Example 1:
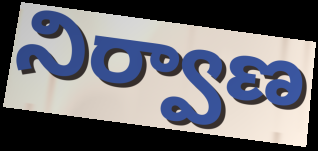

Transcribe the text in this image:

నిర్వాణ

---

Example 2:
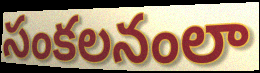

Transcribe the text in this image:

సంకలనంలా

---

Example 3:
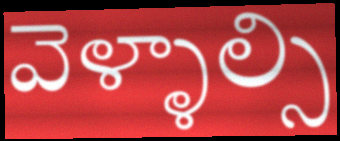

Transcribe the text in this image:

వెళ్ళాల్సి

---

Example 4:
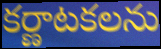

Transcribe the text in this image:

కర్ణాటకలను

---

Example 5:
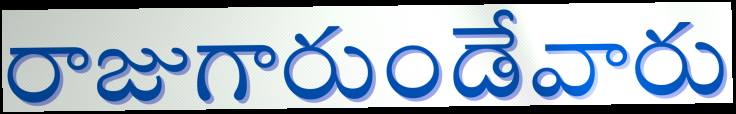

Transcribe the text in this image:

రాజుగారుండేవారు